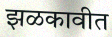
झळकावीत